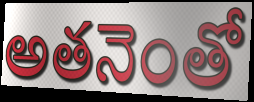
అతనెంతో